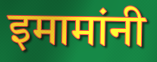
इमामांनी